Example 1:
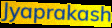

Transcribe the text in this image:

Jyaprakash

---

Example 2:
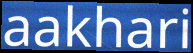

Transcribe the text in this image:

aakhari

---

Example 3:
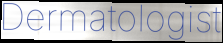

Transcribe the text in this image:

Dermatologist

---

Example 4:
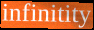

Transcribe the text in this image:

infinitity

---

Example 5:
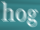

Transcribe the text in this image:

hog